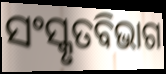
ସଂସ୍କୃତବିଭାଗ